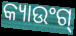
କ୍ୟାଉଂଗ୍